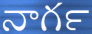
నాగర్‍